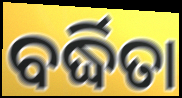
ବର୍ଦ୍ଧିତା